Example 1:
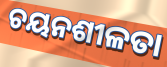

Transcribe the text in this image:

ଚୟନଶୀଳତା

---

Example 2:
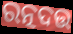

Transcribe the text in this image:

ରତ୍ନଦତ୍ତ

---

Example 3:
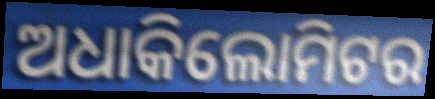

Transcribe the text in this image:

ଅଧାକିଲୋମିଟର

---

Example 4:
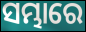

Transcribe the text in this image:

ସମ୍ଭାରେ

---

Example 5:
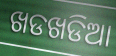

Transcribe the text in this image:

ଖଡଖଡିଆ